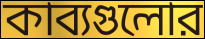
কাব্যগুলোর